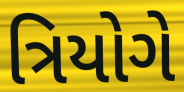
ત્રિયોગે